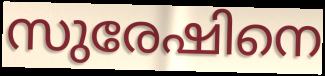
സുരേഷിനെ